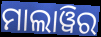
ମାଲାୱିର